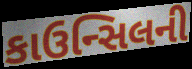
કાઉન્સિલની